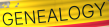
GENEALOGY